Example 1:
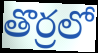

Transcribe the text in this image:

తొర్రలో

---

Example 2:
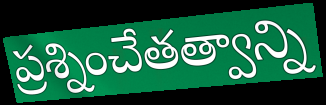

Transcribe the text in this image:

ప్రశ్నించేతత్వాన్ని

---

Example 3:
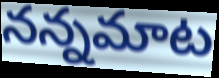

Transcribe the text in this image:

నన్నమాట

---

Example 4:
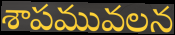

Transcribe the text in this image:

శాపమువలన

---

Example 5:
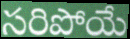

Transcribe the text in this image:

సరిపోయే